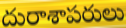
దురాశాపరులు